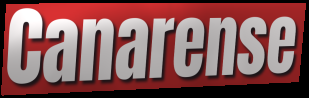
Canarense